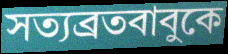
সত্যব্রতবাবুকে